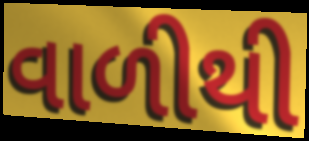
વાળીથી